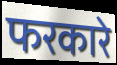
फरकारे